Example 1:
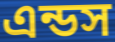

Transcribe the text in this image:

এন্ডস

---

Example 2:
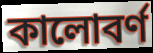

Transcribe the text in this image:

কালোবর্ণ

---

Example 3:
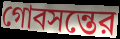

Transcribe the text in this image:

গোবসন্তের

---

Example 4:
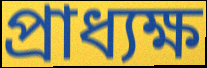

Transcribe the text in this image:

প্রাধ্যক্ষ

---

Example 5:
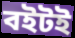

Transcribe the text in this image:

বইটই